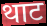
थाट